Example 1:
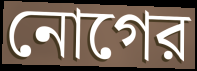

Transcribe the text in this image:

নোগের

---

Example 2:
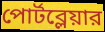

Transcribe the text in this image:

পোর্টব্লেয়ার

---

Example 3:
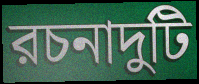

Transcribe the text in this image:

রচনাদুটি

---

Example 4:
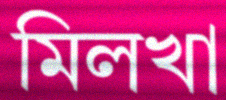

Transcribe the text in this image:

মিলখা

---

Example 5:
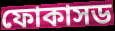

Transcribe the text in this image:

ফোকাসড